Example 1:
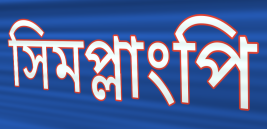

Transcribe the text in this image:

সিমপ্লাংপি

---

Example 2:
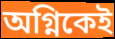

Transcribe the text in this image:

অগ্নিকেই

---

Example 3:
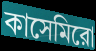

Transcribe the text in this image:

কাসেমিরো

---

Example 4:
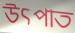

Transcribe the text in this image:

উৎপাত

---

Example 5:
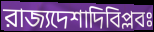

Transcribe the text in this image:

রাজ্যদেশাদিবিপ্লবঃ